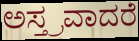
ಅಸ್ತ್ರವಾದರೆ